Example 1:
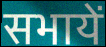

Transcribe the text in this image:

सभायें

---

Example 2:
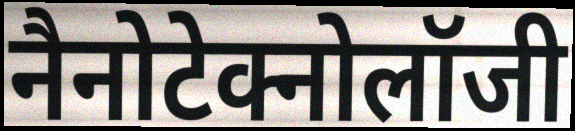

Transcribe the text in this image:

नैनोटेक्नोलॉजी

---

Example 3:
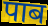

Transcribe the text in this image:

पाब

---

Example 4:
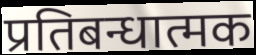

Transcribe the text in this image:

प्रतिबन्धात्मक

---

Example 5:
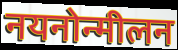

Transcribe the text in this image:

नयनोन्मीलन